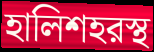
হালিশহরস্থ